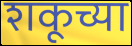
शकूच्या